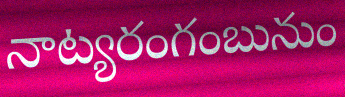
నాట్యరంగంబునుం